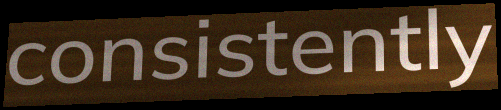
consistently